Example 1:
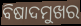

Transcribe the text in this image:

ବିଷାଦମୁଖର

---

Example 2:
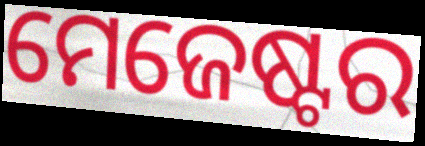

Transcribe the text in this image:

ମେଜେଷ୍ଟର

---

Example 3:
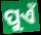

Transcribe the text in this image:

ପୁଏଁ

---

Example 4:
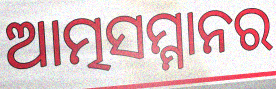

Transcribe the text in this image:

ଆତ୍ମସମ୍ମାନର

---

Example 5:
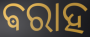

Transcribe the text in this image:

ଵରାହ